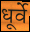
धूर्वे